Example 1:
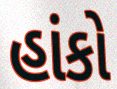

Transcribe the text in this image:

હાંકો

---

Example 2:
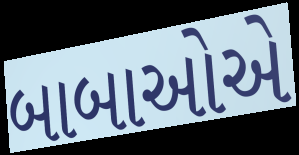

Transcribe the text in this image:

બાબાઓએ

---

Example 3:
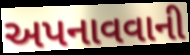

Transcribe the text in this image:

અપનાવવાની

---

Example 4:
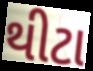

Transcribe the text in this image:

થીટા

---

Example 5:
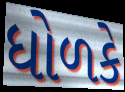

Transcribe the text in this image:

ધોળકે